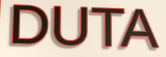
DUTA